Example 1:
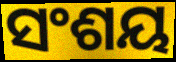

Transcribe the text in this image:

ସଂଶୟ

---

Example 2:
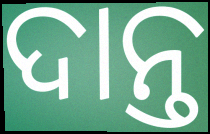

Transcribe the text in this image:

ଦାନ୍ତ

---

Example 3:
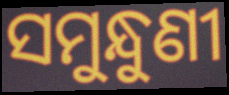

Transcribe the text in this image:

ସମୁନ୍ଧୁଣୀ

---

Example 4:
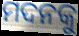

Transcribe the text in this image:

ମଦନକୁ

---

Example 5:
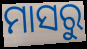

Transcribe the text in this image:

ମାସରୁ